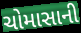
ચોમાસાની